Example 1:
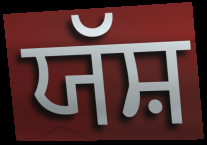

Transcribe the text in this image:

ਯੱਸ਼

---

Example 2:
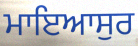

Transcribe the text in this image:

ਮਾਇਆਸੁਰ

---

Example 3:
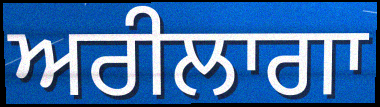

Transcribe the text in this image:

ਅਰੀਲਾਗਾ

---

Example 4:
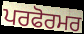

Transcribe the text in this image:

ਪਰਫੋਰਮਰ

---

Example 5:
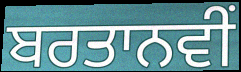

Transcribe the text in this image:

ਬਰਤਾਨਵੀਂ